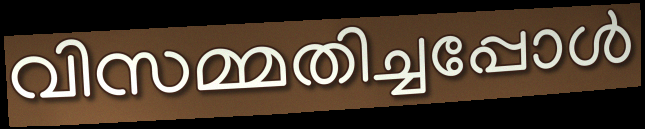
വിസമ്മതിച്ചപ്പോൾ